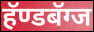
हॅण्डबॅग्ज